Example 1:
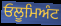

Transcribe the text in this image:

ਓਲੂਮਿਅੰਟ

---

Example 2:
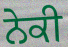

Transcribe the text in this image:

ਨੇਕੀ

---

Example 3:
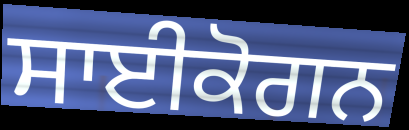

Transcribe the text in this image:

ਸਾਈਕੋਗਨ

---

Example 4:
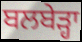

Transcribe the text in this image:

ਬਲਬੇੜ੍ਹਾ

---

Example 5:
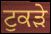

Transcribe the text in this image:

ਟੁਕੜੇ